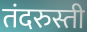
तंदरुस्ती